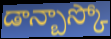
డాన్బాస్కో